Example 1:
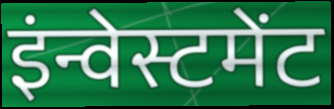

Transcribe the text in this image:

इंन्वेस्टमेंट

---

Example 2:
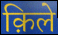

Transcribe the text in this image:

क़िले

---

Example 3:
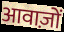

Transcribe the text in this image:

आवाज़ों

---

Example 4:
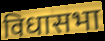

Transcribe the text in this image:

विधासभा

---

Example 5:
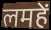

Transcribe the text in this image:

लमहें